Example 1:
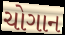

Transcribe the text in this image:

ચોગાન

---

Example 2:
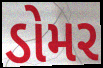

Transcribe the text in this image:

ડોમર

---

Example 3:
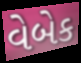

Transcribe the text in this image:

વેબેક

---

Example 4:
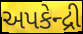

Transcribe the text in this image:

અપકેન્દ્રી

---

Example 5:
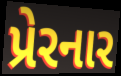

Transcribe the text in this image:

પ્રેરનાર